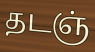
தடஞ்